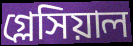
গ্লেসিয়াল